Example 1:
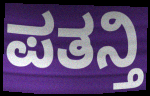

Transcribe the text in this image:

ಪತನ್ತಿ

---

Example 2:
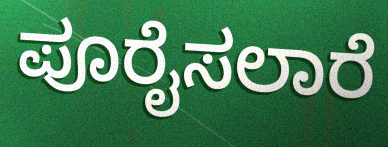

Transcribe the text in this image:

ಪೂರೈಸಲಾರೆ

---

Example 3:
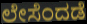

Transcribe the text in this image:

ಲೇಸೆಂದಡೆ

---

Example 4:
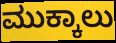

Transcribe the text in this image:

ಮುಕ್ಕಾಲು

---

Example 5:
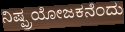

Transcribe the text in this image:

ನಿಷ್ಪ್ರಯೋಜಕನೆಂದು